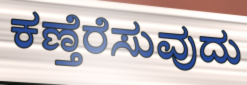
ಕಣ್ತೆರೆಸುವುದು